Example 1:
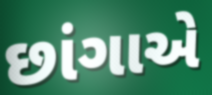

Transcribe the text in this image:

છાંગાએ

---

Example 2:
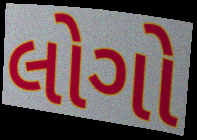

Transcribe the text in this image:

લોગો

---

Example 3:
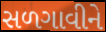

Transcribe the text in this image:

સળગાવીને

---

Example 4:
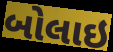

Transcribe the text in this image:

બોલાઇ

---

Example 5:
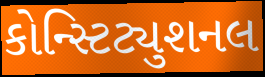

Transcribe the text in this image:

કોન્સ્ટિટ્યુશનલ